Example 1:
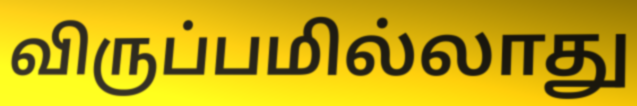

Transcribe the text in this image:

விருப்பமில்லாது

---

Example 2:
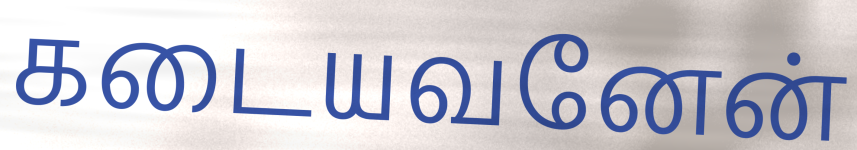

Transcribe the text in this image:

கடையவனேன்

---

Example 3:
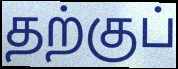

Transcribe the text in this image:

தற்குப்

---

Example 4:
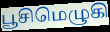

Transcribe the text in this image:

பூசிமெழுகி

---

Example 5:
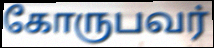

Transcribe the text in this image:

கோருபவர்